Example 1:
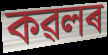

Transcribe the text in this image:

কৱলৰ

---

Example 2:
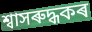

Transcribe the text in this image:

শ্বাসৰুদ্ধকৰ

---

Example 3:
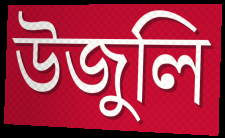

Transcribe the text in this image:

উজুলি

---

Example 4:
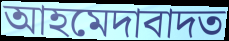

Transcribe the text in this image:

আহমেদাবাদত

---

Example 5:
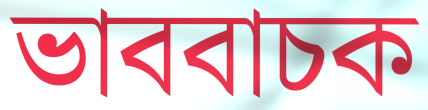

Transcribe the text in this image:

ভাববাচক